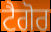
ਟੈਗੋਰ